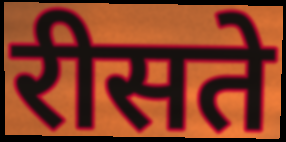
रीसते